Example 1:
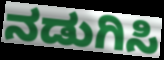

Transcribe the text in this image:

ನಡುಗಿಸಿ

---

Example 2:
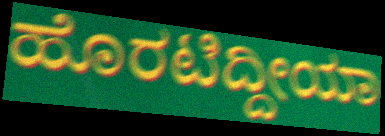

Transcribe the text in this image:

ಹೊರಟಿದ್ದೀಯಾ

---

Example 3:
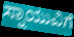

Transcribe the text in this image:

ಸ್ನಾಯುವಿಗೆ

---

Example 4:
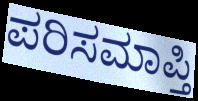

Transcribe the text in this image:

ಪರಿಸಮಾಪ್ತಿ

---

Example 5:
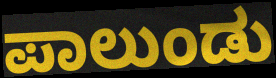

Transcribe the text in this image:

ಪಾಲುಂಡು